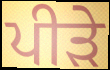
ਪੀੜੇ